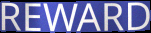
REWARD